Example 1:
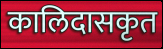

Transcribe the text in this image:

कालिदासकृत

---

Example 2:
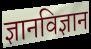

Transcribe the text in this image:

ज्ञानविज्ञान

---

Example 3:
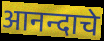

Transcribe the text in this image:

आनन्दाचे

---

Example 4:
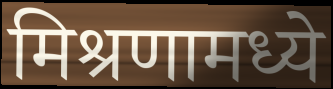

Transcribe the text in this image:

मिश्रणामध्ये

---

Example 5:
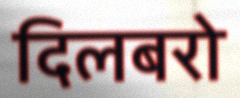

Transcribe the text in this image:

दिलबरो